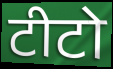
टीटो